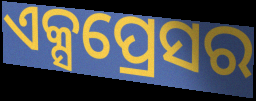
ଏକ୍ସପ୍ରେସର